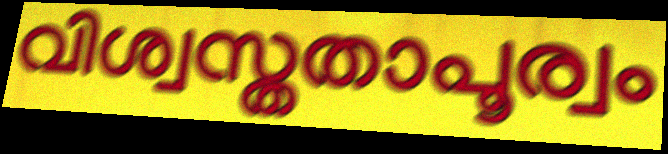
വിശ്വസ്തതാപൂര്വം